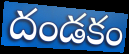
దండకం